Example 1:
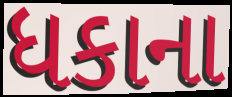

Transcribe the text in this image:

ધકાના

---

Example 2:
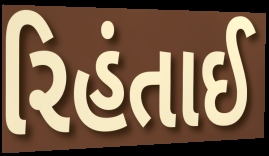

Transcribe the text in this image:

રિહંતાઈ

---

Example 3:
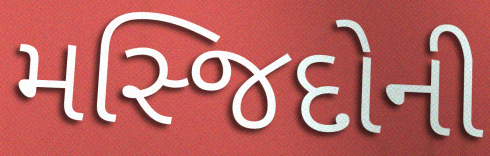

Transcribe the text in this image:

મસ્જિદોની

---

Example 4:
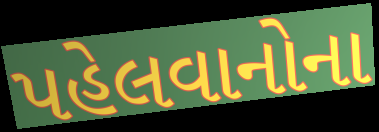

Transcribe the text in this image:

પહેલવાનોના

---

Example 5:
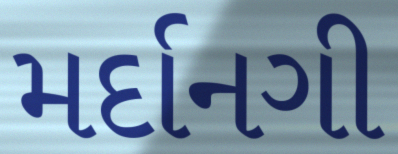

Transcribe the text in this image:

મર્દાનગી